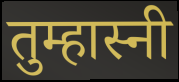
तुम्हास्नी